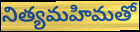
నిత్యమహిమతో